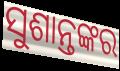
ସୁଶାନ୍ତଙ୍କର